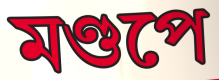
মণ্ডপে